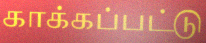
காக்கப்பட்டு